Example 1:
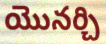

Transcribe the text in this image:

యొనర్చి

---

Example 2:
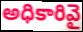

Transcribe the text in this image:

అధికారివై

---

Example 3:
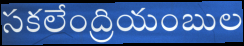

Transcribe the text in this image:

సకలేంద్రియంబుల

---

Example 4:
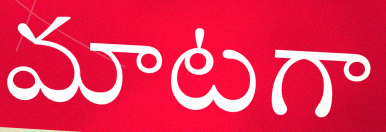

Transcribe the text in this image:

మాటగా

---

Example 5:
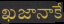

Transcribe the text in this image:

ఖజానాకే